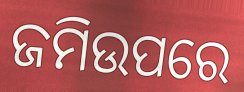
ଜମିଉପରେ